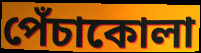
পেঁচাকোলা